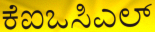
ಕೆಐಒಸಿಎಲ್